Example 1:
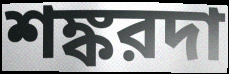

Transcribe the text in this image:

শঙ্করদা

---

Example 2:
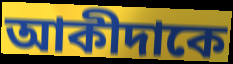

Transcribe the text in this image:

আকীদাকে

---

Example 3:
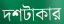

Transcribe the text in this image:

দশটাকার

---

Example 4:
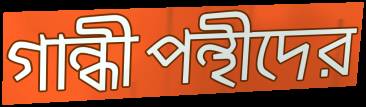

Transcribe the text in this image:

গান্ধীপন্থীদের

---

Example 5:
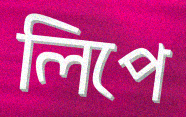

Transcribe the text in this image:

লিপে